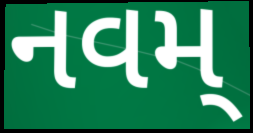
નવમ્